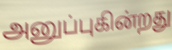
அனுப்புகின்றது